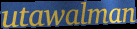
utawalman